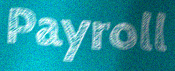
Payroll